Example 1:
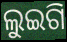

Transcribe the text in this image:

ଲୁଇଗି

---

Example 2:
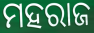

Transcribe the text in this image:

ମହରାଜ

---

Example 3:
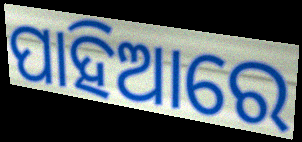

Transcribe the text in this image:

ପାହିଆରେ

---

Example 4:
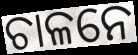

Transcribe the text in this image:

ଚାଳନେ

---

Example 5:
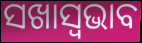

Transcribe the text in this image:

ସଖାସ୍ୱଭାବ